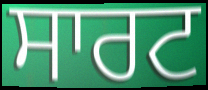
ਸਾਰਟ